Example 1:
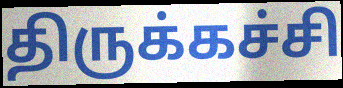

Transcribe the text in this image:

திருக்கச்சி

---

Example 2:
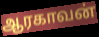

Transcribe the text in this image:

ஆரகாவன்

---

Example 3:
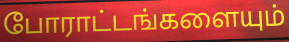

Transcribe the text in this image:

போராட்டங்களையும்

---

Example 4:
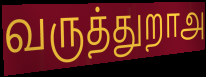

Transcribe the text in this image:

வருத்துறாஅ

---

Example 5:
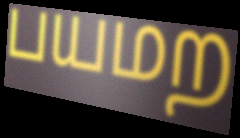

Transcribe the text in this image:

பயமற